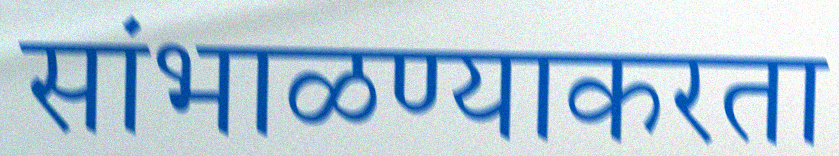
सांभाळण्याकरता